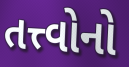
તત્ત્વોનો